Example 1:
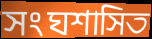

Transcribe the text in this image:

সংঘশাসিত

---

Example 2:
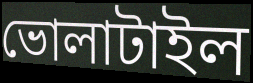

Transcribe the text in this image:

ভোলাটাইল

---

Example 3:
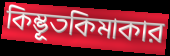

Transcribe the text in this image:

কিম্ভূতকিমাকার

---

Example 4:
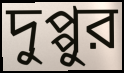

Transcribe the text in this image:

দুপ্পুর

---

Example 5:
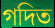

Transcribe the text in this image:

গদিত